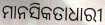
ମାନସିକତାଧାରୀ